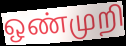
ஒண்முறி